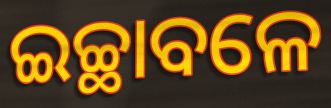
ଇଚ୍ଛାବଳେ